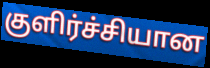
குளிர்ச்சியான